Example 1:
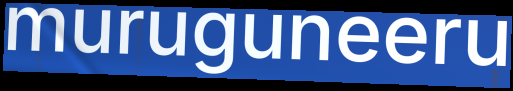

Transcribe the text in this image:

muruguneeru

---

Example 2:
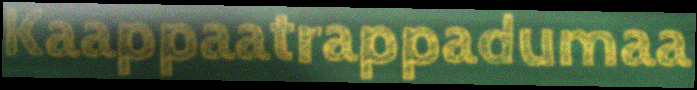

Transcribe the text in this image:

Kaappaatrappadumaa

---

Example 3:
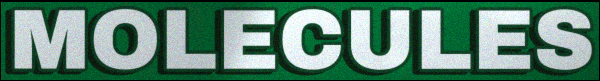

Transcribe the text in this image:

MOLECULES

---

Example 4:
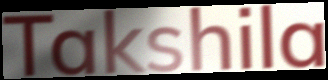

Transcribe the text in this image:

Takshila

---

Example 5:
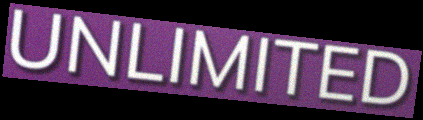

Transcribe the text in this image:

UNLIMITED